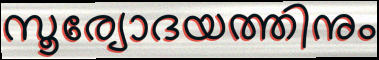
സൂര്യോദയത്തിനും